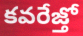
కవరేజ్తో